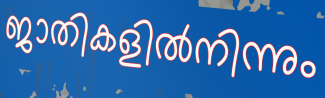
ജാതികളിൽനിന്നും